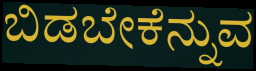
ಬಿಡಬೇಕೆನ್ನುವ